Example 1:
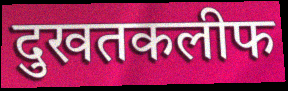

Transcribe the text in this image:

दुखतकलीफ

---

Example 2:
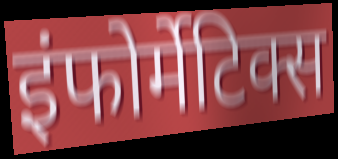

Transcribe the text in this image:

इंफोर्मेटिक्स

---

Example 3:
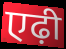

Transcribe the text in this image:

एढ़ी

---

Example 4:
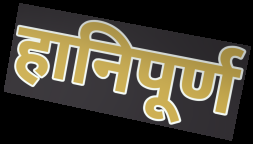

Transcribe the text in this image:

हानिपूर्ण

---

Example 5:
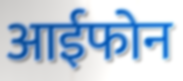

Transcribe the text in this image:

आईफोन